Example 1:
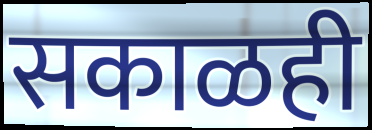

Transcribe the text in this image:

सकाळही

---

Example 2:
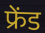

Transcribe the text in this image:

फ्रेंड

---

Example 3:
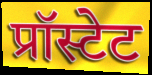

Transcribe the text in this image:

प्रॉस्टेट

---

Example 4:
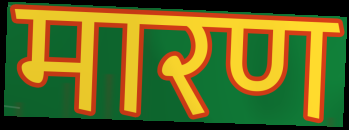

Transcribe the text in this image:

मारण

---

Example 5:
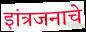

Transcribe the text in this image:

इांत्रजनाचे